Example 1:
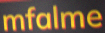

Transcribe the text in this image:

mfalme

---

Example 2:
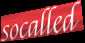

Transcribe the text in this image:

socalled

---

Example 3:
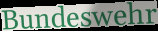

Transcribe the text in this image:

Bundeswehr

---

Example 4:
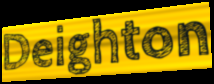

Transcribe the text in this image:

Deighton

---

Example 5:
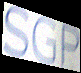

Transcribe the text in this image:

SGP